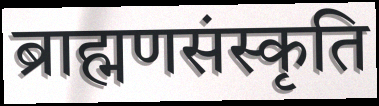
ब्राह्मणसंस्कृति